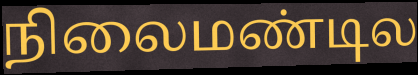
நிலைமண்டில